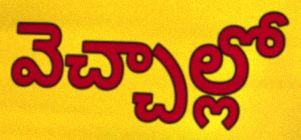
వెచ్చాల్లో